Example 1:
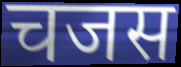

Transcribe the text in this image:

चजस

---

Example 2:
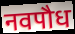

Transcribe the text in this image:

नवपौध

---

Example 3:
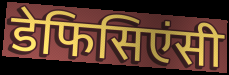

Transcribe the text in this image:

डेफिसिएंसी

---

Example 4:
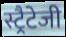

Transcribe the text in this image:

स्ट्रैटेजी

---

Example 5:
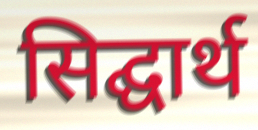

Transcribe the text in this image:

सिद्घार्थ